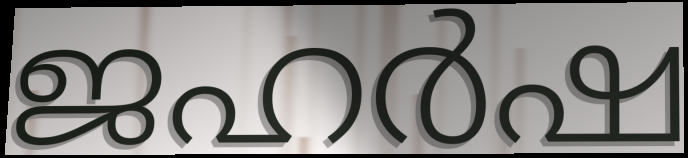
ജഹർഷ